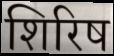
शिरिष